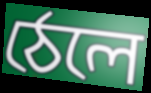
ঠেলে